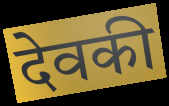
देवकी